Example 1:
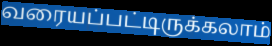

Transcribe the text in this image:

வரையப்பட்டிருக்கலாம்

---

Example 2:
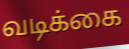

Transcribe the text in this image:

வடிக்கை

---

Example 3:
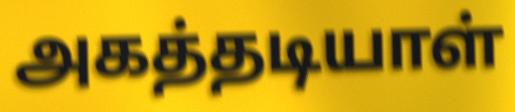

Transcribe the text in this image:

அகத்தடியாள்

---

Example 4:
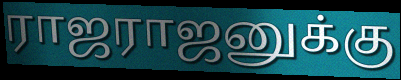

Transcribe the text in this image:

ராஜராஜனுக்கு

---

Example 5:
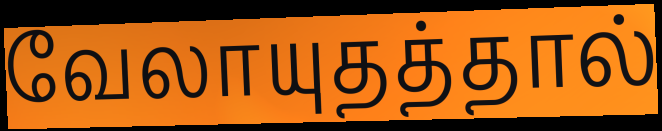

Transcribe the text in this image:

வேலாயுதத்தால்